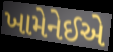
ખામેનેઈએ